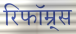
रिफॉम्र्स